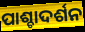
ପାଶ୍ଚାଦର୍ଶନ